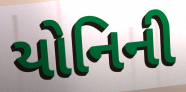
યોનિની